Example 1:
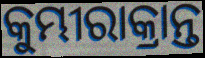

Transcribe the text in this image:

କୁମ୍ଭୀରାକ୍ରାନ୍ତ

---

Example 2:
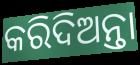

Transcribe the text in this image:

କରିଦିଅନ୍ତା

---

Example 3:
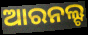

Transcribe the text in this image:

ଆରନଲ୍ଟ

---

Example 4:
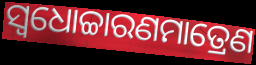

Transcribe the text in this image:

ସ୍ଵଧୋଚ୍ଚାରଣମାତ୍ରେଣ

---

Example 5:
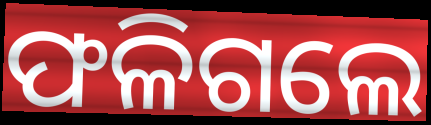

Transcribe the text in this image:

ଫଳିଗଲେ